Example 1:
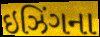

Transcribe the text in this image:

ઇઝિંગના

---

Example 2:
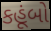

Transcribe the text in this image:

કહૂંબો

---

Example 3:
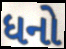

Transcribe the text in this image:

ધનો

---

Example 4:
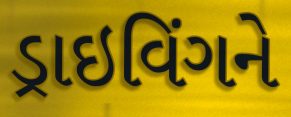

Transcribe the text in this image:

ડ્રાઇવિંગને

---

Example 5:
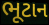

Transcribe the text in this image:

ભૂટાન